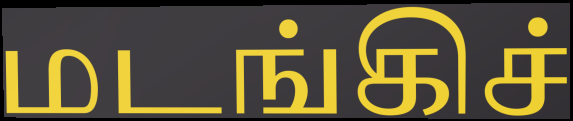
மடங்கிச்